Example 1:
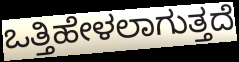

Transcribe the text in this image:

ಒತ್ತಿಹೇಳಲಾಗುತ್ತದೆ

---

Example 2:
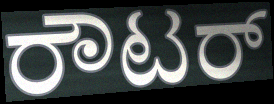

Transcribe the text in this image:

ರೌಟರ್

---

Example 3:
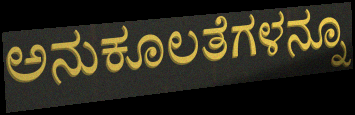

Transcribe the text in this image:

ಅನುಕೂಲತೆಗಳನ್ನೂ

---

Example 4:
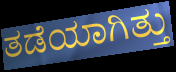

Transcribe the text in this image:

ತಡೆಯಾಗಿತ್ತು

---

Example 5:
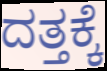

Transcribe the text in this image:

ದತ್ತಕ್ಕೆ